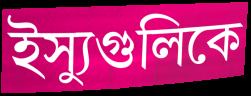
ইস্যুগুলিকে